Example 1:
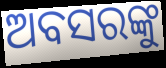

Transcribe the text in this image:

ଅବସରଙ୍କୁ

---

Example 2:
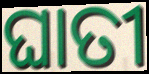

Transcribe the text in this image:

ଘାତୀ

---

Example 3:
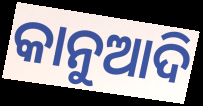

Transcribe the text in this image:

କାନୁଆଦି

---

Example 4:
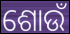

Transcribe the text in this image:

ଶୋଉଁ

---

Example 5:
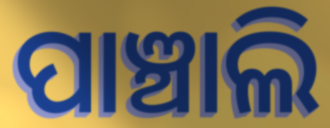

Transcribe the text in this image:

ପାଞ୍ଚାଲି